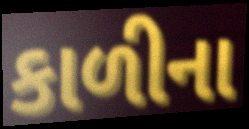
કાળીના